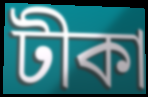
টীকা